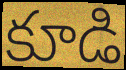
కూడి